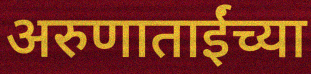
अरुणाताईंच्या